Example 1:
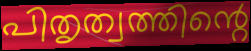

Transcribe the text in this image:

പിതൃത്വത്തിന്റെ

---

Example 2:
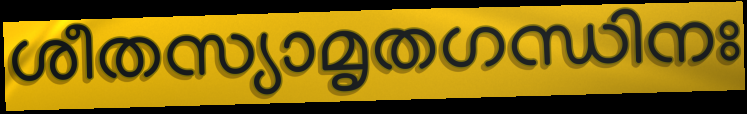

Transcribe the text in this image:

ശീതസ്യാമൃതഗന്ധിനഃ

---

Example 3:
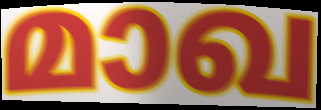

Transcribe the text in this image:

മാഖ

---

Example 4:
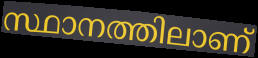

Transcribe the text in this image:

സ്ഥാനത്തിലാണ്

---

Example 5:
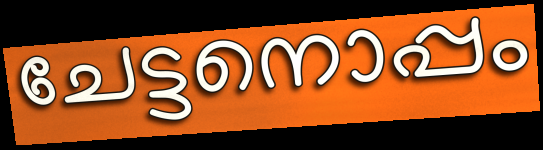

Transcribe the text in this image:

ചേട്ടനൊപ്പം